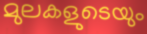
മുലകളുടെയും